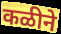
कळीने